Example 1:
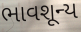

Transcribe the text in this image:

ભાવશૂન્ય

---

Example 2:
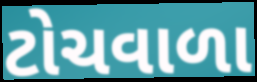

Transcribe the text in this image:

ટોચવાળા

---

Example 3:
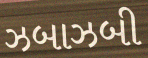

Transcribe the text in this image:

ઝબાઝબી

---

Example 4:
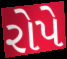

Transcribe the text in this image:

રોપે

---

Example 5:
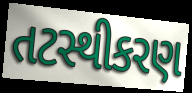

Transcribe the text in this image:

તટસ્થીકરણ